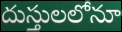
దుస్తులలోనూ